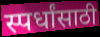
स्पर्धांसाठी